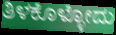
ತಿಳಕೊಳ್ಳೋದು